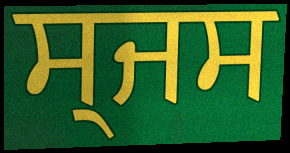
ਸ੍ਜਸ